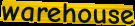
warehouse